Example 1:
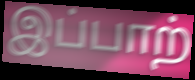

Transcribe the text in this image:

இப்பாற்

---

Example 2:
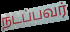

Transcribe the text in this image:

நடப்பவர்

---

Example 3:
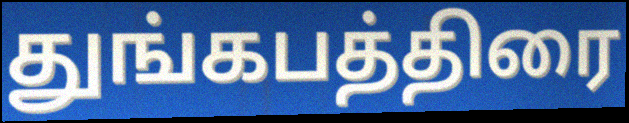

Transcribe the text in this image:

துங்கபத்திரை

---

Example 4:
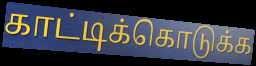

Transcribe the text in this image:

காட்டிக்கொடுக்க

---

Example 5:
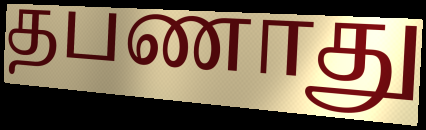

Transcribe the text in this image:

தபணாது